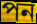
পন